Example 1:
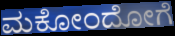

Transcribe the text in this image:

ಮಕೋಂದೋಗೆ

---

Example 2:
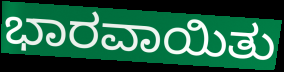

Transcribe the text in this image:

ಭಾರವಾಯಿತು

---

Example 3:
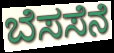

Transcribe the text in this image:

ಬೆಸಸೆನೆ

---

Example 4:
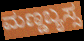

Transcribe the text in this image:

ಮಣ್ಡಬ್ಯಸ್ಸ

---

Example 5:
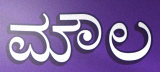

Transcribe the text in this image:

ಮೌಲ